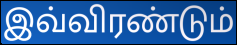
இவ்விரண்டும்